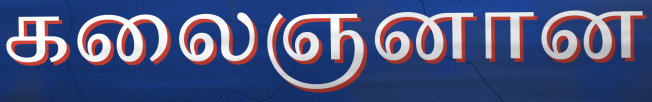
கலைஞனான